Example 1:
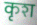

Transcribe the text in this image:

कृश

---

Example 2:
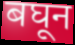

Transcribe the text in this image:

बघून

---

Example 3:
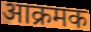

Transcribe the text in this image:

आक्रमक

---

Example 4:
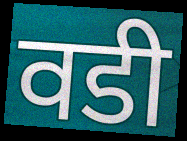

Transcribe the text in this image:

वडी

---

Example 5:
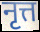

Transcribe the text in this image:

नृत्त